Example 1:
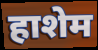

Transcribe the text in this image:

हाशेम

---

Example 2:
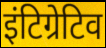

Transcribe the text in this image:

इंटिग्रेटिव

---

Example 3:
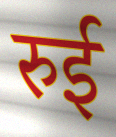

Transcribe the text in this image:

रुई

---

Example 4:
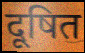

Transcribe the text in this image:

दूषित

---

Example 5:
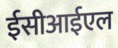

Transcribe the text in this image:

ईसीआईएल